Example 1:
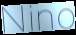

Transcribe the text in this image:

Nino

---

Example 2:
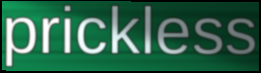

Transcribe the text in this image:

prickless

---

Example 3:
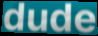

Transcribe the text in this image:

dude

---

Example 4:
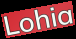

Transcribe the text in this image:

Lohia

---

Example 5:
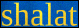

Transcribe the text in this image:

shalat